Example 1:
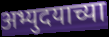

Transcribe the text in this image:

अभ्युदयाच्या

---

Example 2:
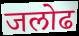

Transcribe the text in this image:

जलोढ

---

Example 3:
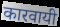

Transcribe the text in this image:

कारवायी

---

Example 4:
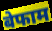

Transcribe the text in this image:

बेफाम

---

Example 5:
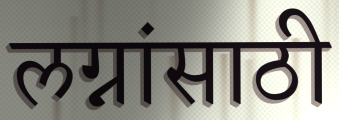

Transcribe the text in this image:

लग्नांसाठी